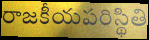
రాజకీయపరిస్థితి